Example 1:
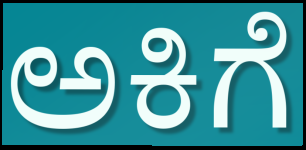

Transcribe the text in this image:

ಅಕಿಗೆ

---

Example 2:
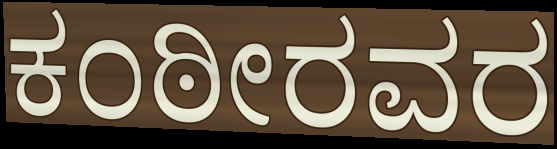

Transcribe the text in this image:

ಕಂಠೀರವರ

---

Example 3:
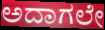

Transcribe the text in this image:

ಅದಾಗಲೇ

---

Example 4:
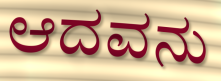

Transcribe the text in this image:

ಆದವನು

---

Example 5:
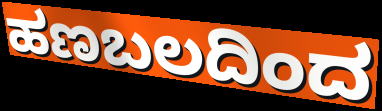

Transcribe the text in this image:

ಹಣಬಲದಿಂದ